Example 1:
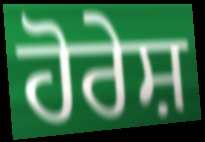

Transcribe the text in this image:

ਹੋਰੇਸ਼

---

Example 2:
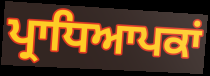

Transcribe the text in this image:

ਪ੍ਰਾਧਿਆਪਕਾਂ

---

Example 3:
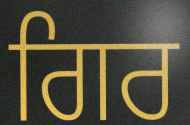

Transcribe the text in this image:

ਗਿਰ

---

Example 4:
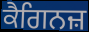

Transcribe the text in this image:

ਕੈਗਿਨਜ਼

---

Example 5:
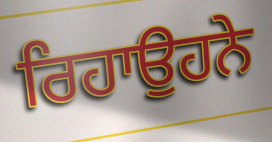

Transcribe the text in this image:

ਰਿਹਾਉਹਨੇ